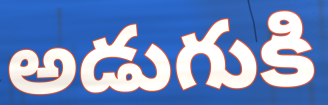
అడుగుకి